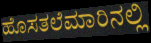
ಹೊಸತಲೆಮಾರಿನಲ್ಲಿ